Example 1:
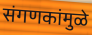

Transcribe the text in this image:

संगणकांमुळे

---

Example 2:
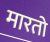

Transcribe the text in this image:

मारतो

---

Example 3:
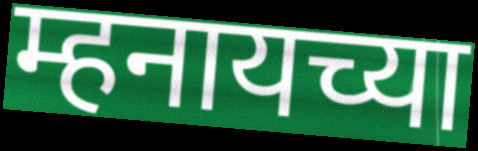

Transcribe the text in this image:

म्हनायच्या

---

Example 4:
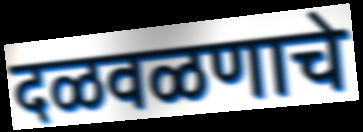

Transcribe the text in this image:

दळवळणाचे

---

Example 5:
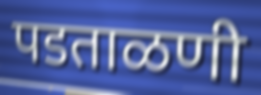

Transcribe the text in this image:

पडताळणी